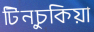
টিনচুকিয়া